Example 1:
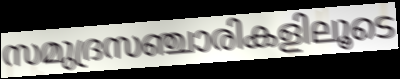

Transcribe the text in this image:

സമുദ്രസഞ്ചാരികളിലൂടെ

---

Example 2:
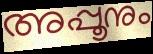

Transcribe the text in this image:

അപ്പൂനും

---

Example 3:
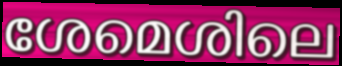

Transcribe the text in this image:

ശേമെശിലെ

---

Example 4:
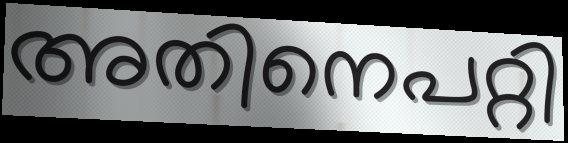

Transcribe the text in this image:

അതിനെപറ്റി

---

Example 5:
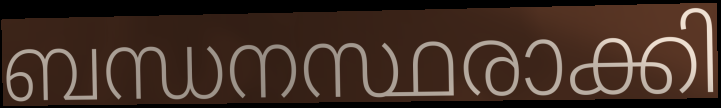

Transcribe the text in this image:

ബന്ധനസ്ഥരാക്കി